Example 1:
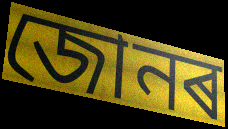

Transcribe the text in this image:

জোনৰ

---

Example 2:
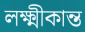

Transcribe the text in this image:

লক্ষ্মীকান্ত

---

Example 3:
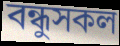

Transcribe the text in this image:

বন্ধুসকল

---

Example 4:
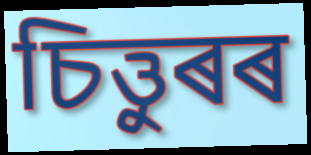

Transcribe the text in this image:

চিত্তুৰৰ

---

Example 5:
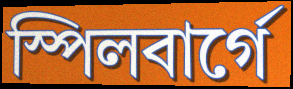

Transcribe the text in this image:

স্পিলবাৰ্গে